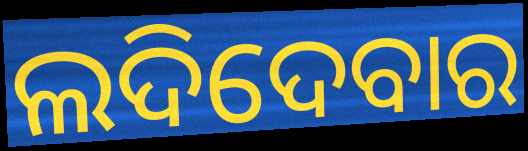
ଲଦିଦେବାର